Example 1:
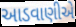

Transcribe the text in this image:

આડવાણીએ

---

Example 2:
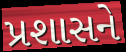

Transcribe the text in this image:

પ્રશાસને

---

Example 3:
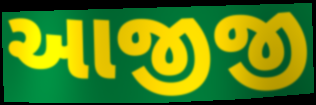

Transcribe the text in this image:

આજીજી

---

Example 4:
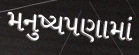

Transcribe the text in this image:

મનુષ્યપણામાં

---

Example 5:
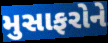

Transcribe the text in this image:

મુસાફરોને